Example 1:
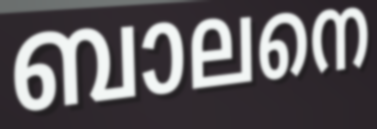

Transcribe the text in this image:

ബാലനെ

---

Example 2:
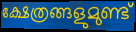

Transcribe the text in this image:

ക്ഷേത്രങ്ങളുമുണ്ട്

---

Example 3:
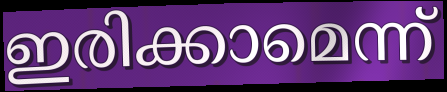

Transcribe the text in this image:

ഇരിക്കാമെന്ന്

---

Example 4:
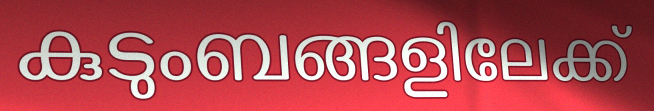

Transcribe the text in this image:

കുടുംബങ്ങളിലേക്ക്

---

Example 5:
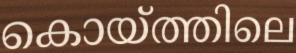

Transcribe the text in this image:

കൊയ്ത്തിലെ